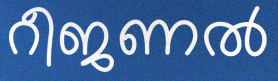
റീജണൽ